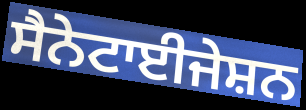
ਸੈਨੇਟਾਈਜੇਸ਼ਨ